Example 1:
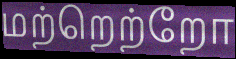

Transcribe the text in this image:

மற்றெற்றோ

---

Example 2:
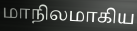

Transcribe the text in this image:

மாநிலமாகிய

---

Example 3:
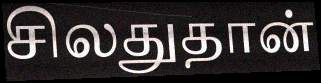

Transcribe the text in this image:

சிலதுதான்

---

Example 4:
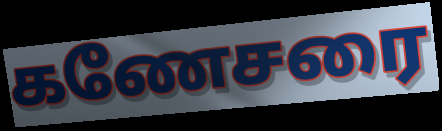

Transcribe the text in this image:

கணேசரை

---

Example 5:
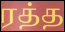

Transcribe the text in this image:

ரத்த